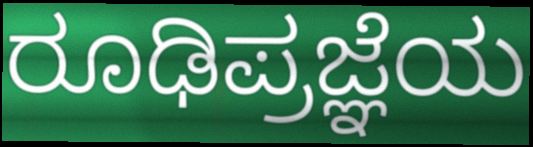
ರೂಢಿಪ್ರಜ್ಞೆಯ